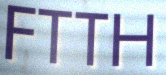
FTTH